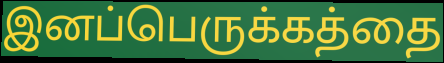
இனப்பெருக்கத்தை